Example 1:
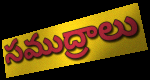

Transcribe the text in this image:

సముద్రాలు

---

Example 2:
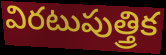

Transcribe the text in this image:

విరటుపుత్త్రిక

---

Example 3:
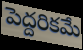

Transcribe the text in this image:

పెద్దరికమే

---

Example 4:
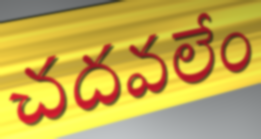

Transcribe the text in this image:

చదవలేం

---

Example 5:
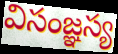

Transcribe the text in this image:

విసంజ్ఞస్య